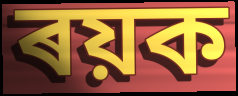
ৰয়ক